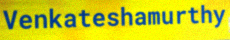
Venkateshamurthy